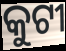
କୁଟୀ